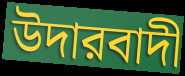
উদারবাদী